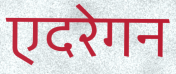
एदरेगन